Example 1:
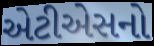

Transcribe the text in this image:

એટીએસનો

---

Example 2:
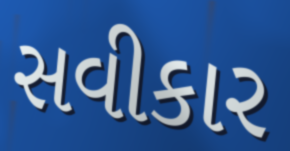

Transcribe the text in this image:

સવીકાર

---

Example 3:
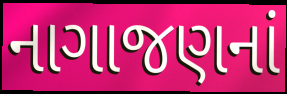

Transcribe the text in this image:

નાગાજણનાં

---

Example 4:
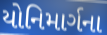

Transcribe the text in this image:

યોનિમાર્ગના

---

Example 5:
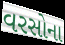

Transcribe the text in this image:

વરસોના